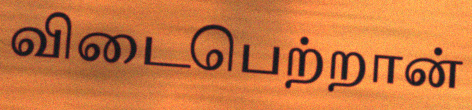
விடைபெற்றான்